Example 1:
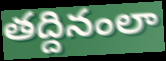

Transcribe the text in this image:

తద్దినంలా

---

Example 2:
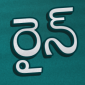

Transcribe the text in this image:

రైన్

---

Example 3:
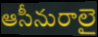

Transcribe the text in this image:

ఆసీనురాలై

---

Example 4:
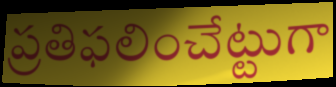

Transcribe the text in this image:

ప్రతిఫలించేట్టుగా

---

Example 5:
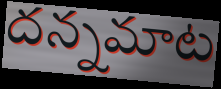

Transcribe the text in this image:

దన్నమాట